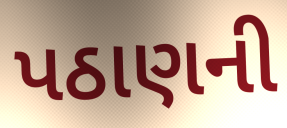
પઠાણની